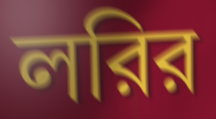
লরির